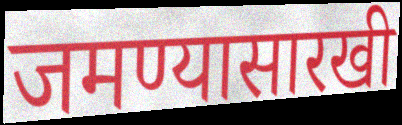
जमण्यासारखी